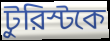
টুরিস্টকে